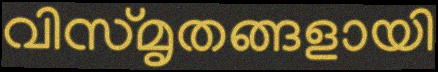
വിസ്മൃതങ്ങളായി